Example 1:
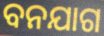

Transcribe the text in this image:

ବନଯାଗ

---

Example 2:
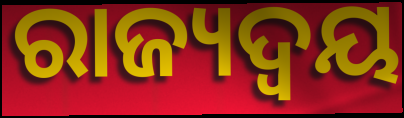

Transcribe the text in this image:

ରାଜ୍ୟଦ୍ୱୟ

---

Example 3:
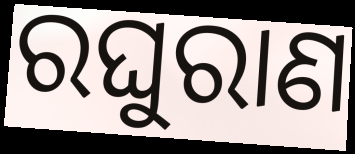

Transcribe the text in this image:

ରଘୁରାଣ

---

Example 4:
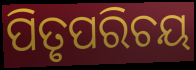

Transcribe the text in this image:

ପିତୃପରିଚୟ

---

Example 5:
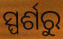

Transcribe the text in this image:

ସ୍ପର୍ଶରୁ